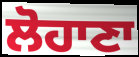
ਲੋਹਾਣਾ